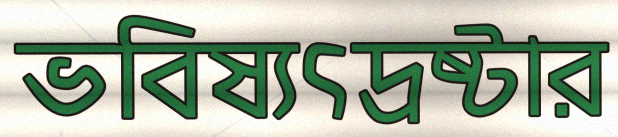
ভবিষ্যৎদ্রষ্টার